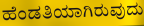
ಹೆಂಡತಿಯಾಗಿರುವುದು